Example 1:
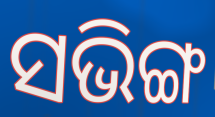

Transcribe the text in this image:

ସଭିଙ୍ଗ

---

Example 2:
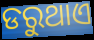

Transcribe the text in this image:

ଡରୁଥାଏ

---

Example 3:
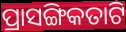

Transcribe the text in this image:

ପ୍ରାସଙ୍ଗିକତାଟି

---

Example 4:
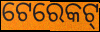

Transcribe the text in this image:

ଟେରେକଟ୍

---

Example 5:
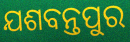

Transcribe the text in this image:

ଯଶବନ୍ତପୁର